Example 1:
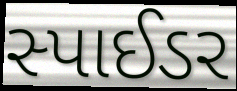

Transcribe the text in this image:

સ્પાઈડર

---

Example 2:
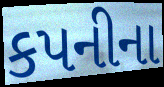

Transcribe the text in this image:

કપનીના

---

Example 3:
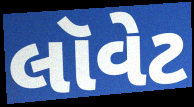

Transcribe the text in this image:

લૉવેટ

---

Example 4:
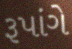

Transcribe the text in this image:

રૂપાંગે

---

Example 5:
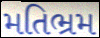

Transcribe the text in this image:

મતિભ્રમ